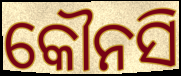
କୌନସି